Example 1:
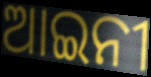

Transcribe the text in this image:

ଆଇନୀ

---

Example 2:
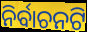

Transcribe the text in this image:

ନିର୍ବାଚନଟି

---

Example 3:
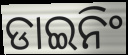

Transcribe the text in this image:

ଡାଇନିଂ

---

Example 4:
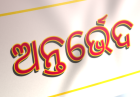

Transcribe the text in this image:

ଅନ୍ତର୍ଭେଦ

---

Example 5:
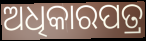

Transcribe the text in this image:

ଅଧିକାରପତ୍ର